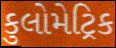
કુલોમેટ્રિક